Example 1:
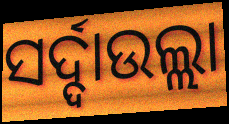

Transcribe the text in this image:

ସର୍ଦ୍ଦାଉଲ୍ଲା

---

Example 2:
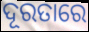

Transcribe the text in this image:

ଦୂରତାରେ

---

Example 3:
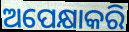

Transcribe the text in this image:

ଅପେକ୍ଷାକରି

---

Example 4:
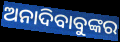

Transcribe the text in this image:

ଅନାଦିବାବୁଙ୍କର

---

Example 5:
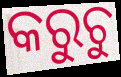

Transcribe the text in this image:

କରୁଚୁ